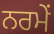
ਨਰਮੇਂ